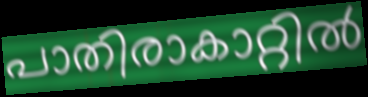
പാതിരാകാറ്റിൽ